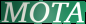
MOTA